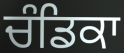
ਚੰਡਿਕਾ